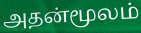
அதன்மூலம்